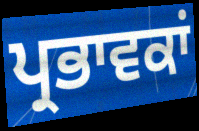
ਪ੍ਰਭਾਵਕਾਂ